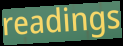
readings